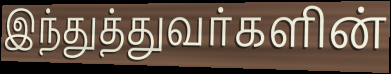
இந்துத்துவர்களின்